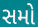
સમો